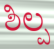
ಶಿಲ್ಪ